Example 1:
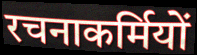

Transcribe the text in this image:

रचनाकर्मियों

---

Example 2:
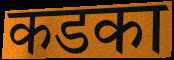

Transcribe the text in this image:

कडका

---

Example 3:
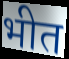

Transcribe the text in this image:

भीत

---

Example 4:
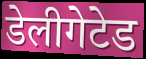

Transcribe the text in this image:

डेलीगेटेड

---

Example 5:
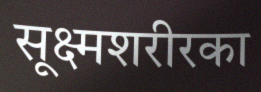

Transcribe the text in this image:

सूक्ष्मशरीरका